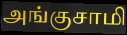
அங்குசாமி